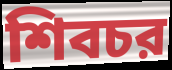
শিবচর